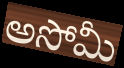
అసోమీ